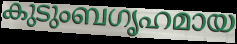
കുടുംബഗൃഹമായ